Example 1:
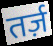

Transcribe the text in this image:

तर्ज़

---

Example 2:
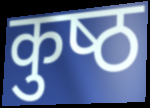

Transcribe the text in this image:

कुष्‍ठ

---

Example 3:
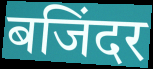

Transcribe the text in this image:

बजिंदर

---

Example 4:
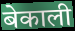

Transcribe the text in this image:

बेकाली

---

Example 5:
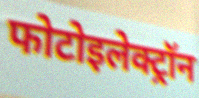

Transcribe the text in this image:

फोटोइलेक्ट्रॉन